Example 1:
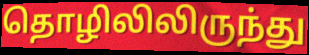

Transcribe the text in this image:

தொழிலிலிருந்து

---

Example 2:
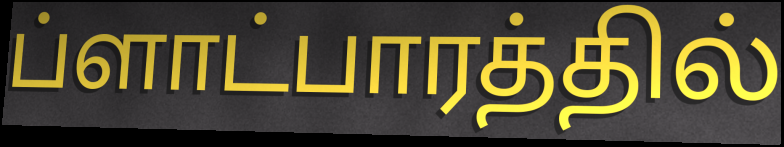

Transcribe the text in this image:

ப்ளாட்பாரத்தில்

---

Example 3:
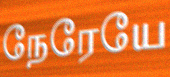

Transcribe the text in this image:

நேரேயே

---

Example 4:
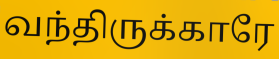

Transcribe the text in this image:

வந்திருக்காரே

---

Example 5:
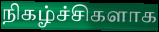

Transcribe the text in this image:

நிகழ்ச்சிகளாக